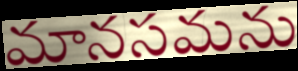
మానసమను